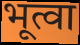
भूत्वा